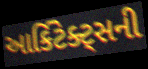
આર્કિટેક્ટ્સની